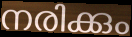
നരിക്കും